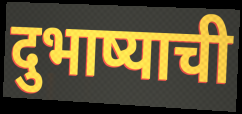
दुभाष्याची